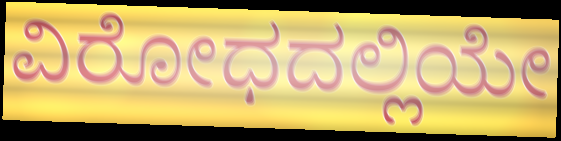
ವಿರೋಧದಲ್ಲಿಯೇ